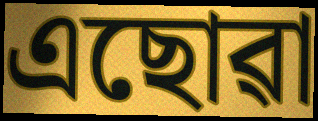
এছোৱা